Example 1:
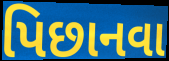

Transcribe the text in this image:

પિછાનવા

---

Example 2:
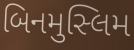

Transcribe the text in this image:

બિનમુસ્લિમ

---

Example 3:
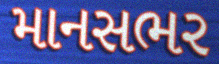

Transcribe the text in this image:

માનસભર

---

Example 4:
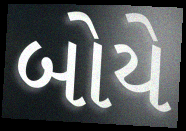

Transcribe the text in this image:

બોયે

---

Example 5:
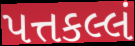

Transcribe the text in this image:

પત્તકલ્લં